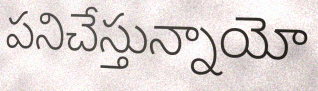
పనిచేస్తున్నాయో